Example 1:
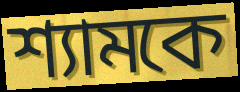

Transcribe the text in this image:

শ্যামকে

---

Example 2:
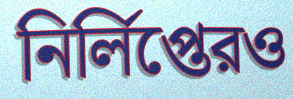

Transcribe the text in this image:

নির্লিপ্তেরও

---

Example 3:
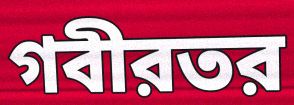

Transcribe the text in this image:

গবীরতর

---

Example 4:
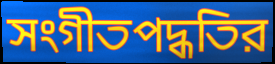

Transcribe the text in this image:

সংগীতপদ্ধতির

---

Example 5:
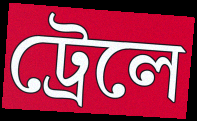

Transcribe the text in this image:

ট্রেলে